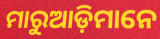
ମାରୁଆଡ଼ିମାନେ